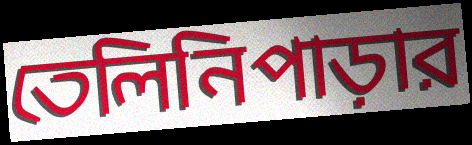
তেলিনিপাড়ার